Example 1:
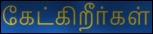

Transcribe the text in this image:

கேட்கிறீர்கள்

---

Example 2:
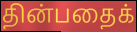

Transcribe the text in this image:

தின்பதைக்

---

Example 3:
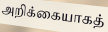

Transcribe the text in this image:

அறிக்கையாகத்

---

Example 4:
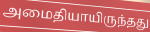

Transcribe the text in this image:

அமைதியாயிருந்தது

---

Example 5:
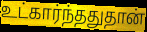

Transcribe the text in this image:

உட்கார்ந்ததுதான்